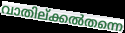
വാതില്ക്കൽതന്നെ